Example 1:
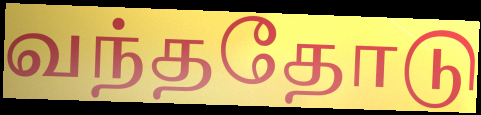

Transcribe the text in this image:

வந்ததோடு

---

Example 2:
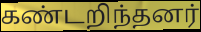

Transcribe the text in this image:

கண்டறிந்தனர்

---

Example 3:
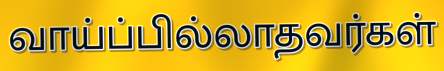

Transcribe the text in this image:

வாய்ப்பில்லாதவர்கள்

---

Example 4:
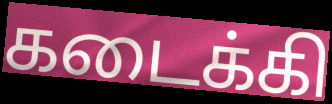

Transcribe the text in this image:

கடைக்கி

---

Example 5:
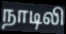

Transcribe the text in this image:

நாடிலி